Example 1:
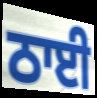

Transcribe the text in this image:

ਠਾਈ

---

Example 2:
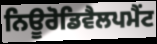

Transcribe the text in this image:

ਨਿਊਰੋਡਿਵੈਲਪਮੈਂਟ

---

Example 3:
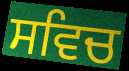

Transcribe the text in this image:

ਸਵਿਚ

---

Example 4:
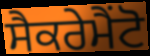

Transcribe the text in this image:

ਸੈਕਰੇਮੈਂਟੋ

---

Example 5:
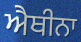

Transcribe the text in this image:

ਐਥੀਨਾ